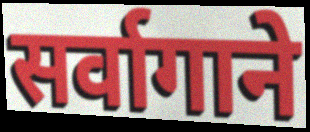
सर्वागाने